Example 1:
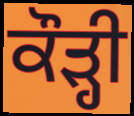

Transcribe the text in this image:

ਕੌੜ੍ਹੀ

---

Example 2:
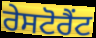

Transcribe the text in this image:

ਰੇਸਟੋਰੈਂਟ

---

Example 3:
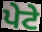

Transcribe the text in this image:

ਪੇਟੇ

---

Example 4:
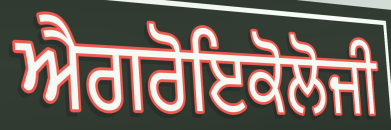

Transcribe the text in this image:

ਐਗਰੋਇਕੋਲੋਜੀ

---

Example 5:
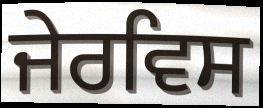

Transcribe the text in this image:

ਜੇਰਵਿਸ